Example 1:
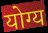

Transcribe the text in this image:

योग्य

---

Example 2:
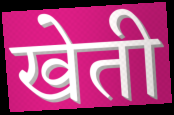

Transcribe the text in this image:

खेती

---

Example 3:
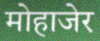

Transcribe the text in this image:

मोहाजेर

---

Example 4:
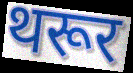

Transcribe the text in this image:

थरूर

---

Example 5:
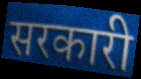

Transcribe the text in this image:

सरकारी